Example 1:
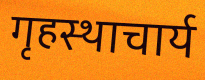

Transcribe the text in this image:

गृहस्थाचार्य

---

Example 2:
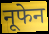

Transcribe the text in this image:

नूफेन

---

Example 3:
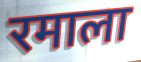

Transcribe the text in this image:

रमाला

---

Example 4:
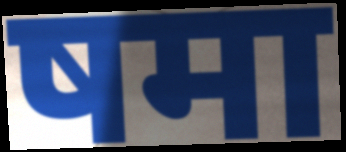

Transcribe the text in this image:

षमा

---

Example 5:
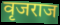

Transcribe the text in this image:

वृजराज